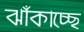
ঝাঁকাচ্ছে